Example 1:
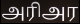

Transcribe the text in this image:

அரிஅர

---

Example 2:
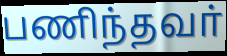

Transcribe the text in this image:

பணிந்தவர்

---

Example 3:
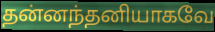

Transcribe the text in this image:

தன்னந்தனியாகவே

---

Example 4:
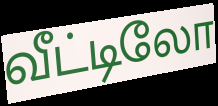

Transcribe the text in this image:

வீட்டிலோ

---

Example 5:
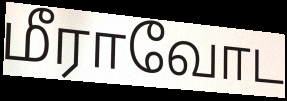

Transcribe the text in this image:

மீராவோட